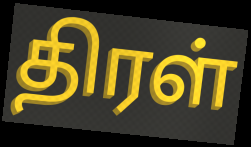
திரள்